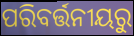
ପରିବର୍ତ୍ତନୀୟରୁ